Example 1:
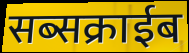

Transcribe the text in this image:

सब्सक्राईब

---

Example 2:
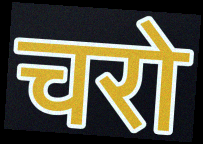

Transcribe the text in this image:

चरो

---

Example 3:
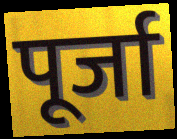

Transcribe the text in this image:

पूर्जा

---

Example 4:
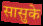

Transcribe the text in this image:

सासुके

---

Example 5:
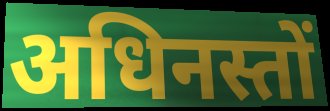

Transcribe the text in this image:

अधिनस्तों